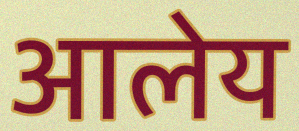
आलेय